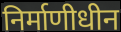
निर्माणीधीन